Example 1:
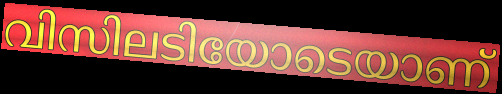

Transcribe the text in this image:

വിസിലടിയോടെയാണ്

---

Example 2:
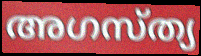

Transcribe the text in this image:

അഗസ്ത്യ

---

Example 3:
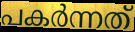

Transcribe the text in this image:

പകർന്നത്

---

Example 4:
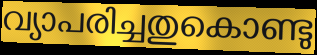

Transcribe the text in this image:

വ്യാപരിച്ചതുകൊണ്ടു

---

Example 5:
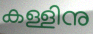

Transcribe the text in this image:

കള്ളിനു